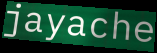
jayache